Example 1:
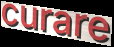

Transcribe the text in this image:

curare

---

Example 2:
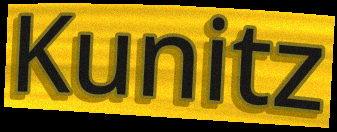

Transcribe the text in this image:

Kunitz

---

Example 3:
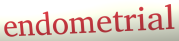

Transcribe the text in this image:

endometrial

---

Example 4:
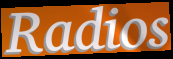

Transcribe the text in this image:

Radios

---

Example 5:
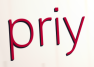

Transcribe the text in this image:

priy